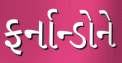
ફર્નાન્ડોને